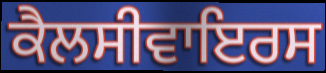
ਕੈਲਸੀਵਾਇਰਸ